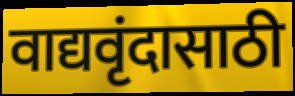
वाद्यवृंदासाठी